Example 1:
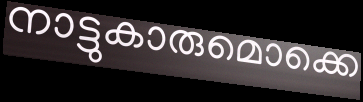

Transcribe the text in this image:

നാട്ടുകാരുമൊക്കെ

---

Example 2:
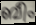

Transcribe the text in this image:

ബീം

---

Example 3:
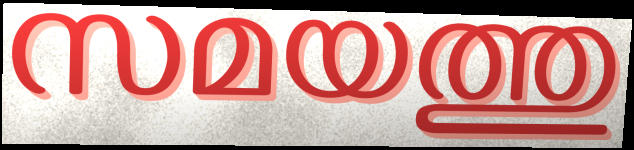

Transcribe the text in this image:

സമയത്തു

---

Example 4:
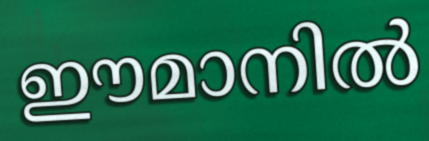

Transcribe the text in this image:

ഈമാനിൽ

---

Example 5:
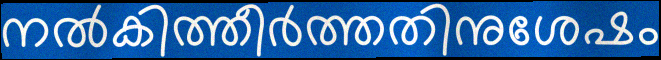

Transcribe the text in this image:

നൽകിത്തീർത്തതിനുശേഷം